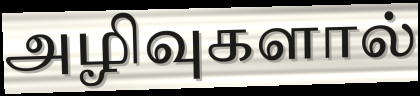
அழிவுகளால்